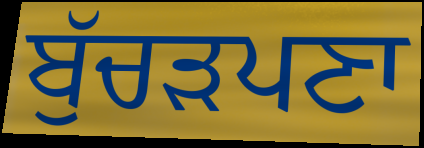
ਬੁੱਚੜਪਣਾ